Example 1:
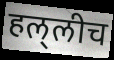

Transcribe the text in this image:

हल्लीच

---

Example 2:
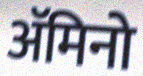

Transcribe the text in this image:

ॲमिनो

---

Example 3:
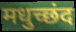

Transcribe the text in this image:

मधुच्छंद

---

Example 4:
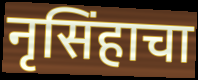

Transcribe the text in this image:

नृसिंहाचा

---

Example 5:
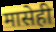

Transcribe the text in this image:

मासेही